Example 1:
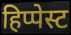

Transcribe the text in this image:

हिप्पेस्ट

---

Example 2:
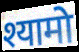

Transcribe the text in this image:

श्यामो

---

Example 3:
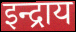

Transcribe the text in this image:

इन्द्राय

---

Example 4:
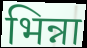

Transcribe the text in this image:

भिन्ना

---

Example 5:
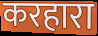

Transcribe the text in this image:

करहारा